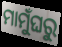
ମାମୁଁଘରୁ